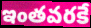
ఇంతవరకే